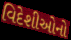
વિદેશીઓનો